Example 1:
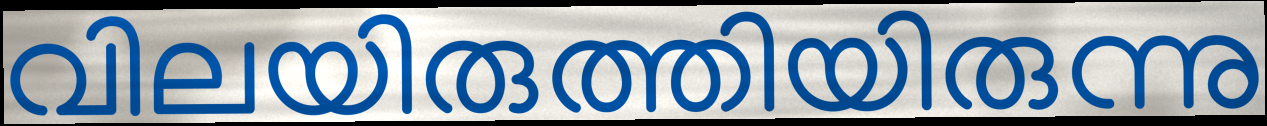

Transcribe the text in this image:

വിലയിരുത്തിയിരുന്നു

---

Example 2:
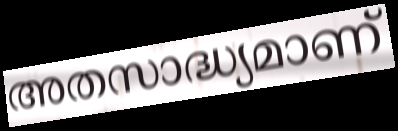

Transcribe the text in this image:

അതസാദ്ധ്യമാണ്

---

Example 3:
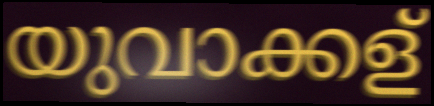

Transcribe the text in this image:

യുവാക്കള്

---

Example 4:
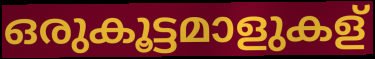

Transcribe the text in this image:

ഒരുകൂട്ടമാളുകള്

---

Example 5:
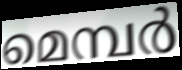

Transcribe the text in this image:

മെമ്പർ